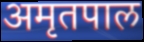
अमृतपाल